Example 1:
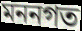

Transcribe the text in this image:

মননগত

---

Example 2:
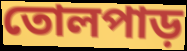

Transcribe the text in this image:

তোলপাড়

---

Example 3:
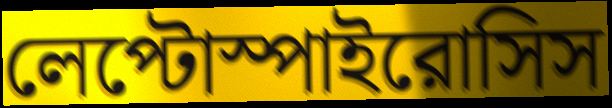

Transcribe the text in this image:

লেপ্টোস্পাইরোসিস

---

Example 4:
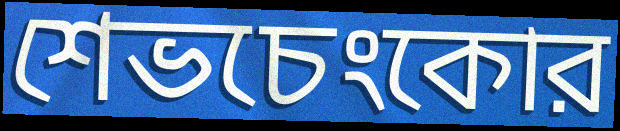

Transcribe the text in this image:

শেভচেংকোর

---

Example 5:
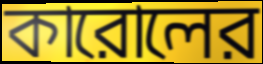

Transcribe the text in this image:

কারোলের